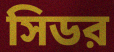
সিডর